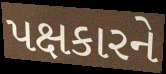
પક્ષકારને